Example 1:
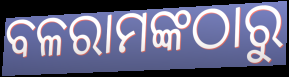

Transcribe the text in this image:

ବଳରାମଙ୍କଠାରୁ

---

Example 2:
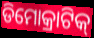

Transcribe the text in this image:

ଡିମୋକ୍ରାଟିକ୍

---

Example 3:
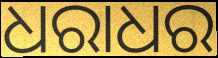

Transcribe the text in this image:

ଧରାଧର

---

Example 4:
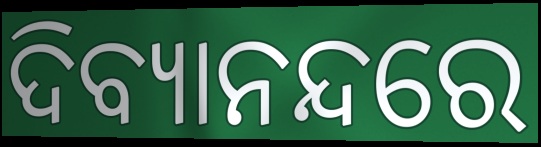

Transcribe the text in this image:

ଦିବ୍ୟାନନ୍ଦରେ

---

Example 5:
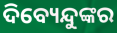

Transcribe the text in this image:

ଦିବ୍ୟେନ୍ଦୁଙ୍କର